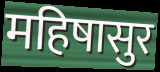
महिषासुर